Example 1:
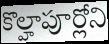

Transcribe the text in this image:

కొల్హాపూర్లోని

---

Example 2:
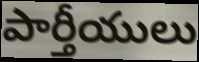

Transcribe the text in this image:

పార్తీయులు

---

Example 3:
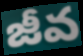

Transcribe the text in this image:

జీవ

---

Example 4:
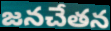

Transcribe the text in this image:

జనచేతన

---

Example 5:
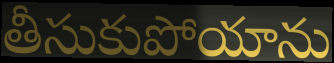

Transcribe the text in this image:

తీసుకుపోయాను